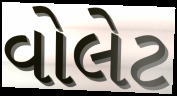
વોલેટ